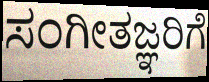
ಸಂಗೀತಜ್ಞರಿಗೆ